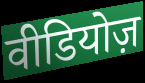
वीडियोज़